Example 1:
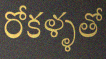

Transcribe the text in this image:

రోకళ్ళతో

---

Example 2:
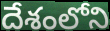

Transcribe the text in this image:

దేశంలోని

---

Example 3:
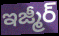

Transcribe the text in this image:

ఇజ్మీర్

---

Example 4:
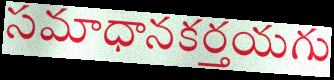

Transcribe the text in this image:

సమాధానకర్తయగు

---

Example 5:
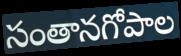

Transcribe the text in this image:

సంతానగోపాల